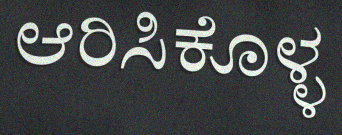
ಆರಿಸಿಕೊಳ್ಳ